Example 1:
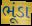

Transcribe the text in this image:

ભૂંડા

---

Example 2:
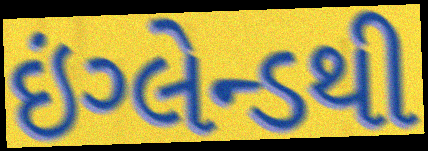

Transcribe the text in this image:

ઇંગ્લેન્ડથી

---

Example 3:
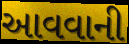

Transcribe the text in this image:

આવવાની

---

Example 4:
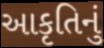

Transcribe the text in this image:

આકૃતિનું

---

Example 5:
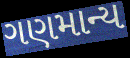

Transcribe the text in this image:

ગણમાન્ય